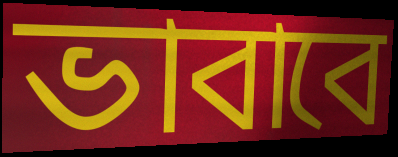
ভাবাবে